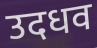
उदधव